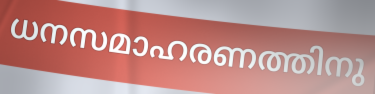
ധനസമാഹരണത്തിനു